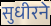
सुधीरने